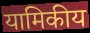
यामिकीय